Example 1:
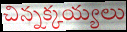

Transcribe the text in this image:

చిన్నక్కయ్యలు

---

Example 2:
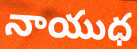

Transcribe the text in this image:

నాయుధ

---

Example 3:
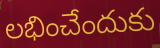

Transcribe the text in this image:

లభించేందుకు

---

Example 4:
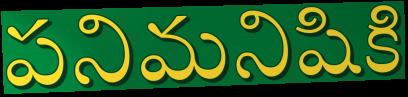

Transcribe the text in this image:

పనిమనిషికి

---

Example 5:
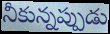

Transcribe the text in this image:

నీకున్నప్పుడు